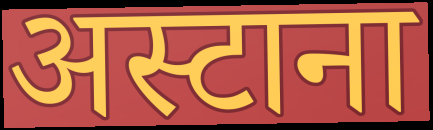
अस्टाना